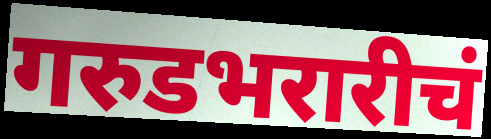
गरुडभरारीचं